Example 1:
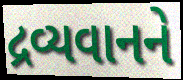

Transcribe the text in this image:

દ્રવ્યવાનને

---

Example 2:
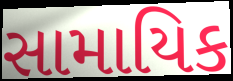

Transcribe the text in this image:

સામાયિક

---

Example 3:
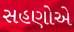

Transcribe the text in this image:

સહણોએ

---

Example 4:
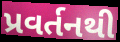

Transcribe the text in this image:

પ્રવર્તનથી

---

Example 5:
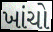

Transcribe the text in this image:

ખાંચો